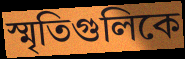
স্মৃতিগুলিকে